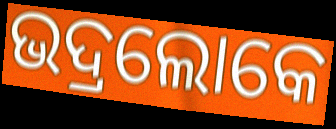
ଭଦ୍ରଲୋକେ